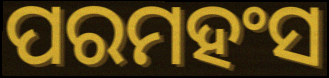
ପରମହଂସ